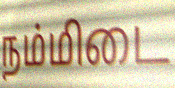
நம்மிடை